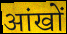
आंखों